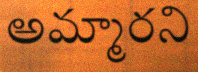
అమ్మారని